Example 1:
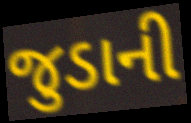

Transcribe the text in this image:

જુડાની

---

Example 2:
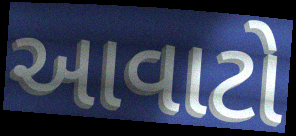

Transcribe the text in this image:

આવાટો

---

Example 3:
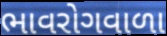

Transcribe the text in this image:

ભાવરોગવાળા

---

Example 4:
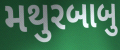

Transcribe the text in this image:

મથુરબાબુ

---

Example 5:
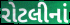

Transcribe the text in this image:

રોટલીનાં